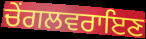
ਚੇਂਗਲਵਰਾਇਣ